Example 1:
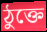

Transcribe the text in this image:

ঠুক্তে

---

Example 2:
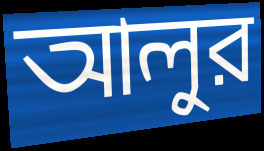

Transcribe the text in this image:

আলুর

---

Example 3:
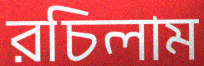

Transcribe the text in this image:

রচিলাম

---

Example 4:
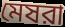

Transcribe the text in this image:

মেষরা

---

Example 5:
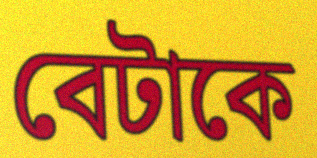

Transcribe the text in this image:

বেটাকে